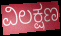
ವಿಲಕ್ಷಣ